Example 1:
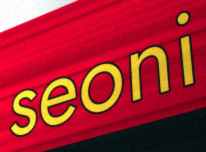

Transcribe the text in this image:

seoni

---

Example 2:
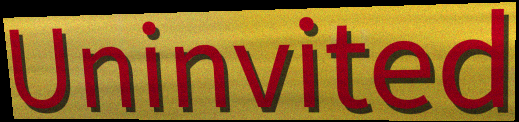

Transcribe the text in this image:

Uninvited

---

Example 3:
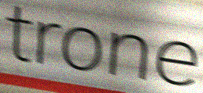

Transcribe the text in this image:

trone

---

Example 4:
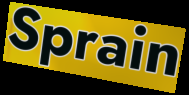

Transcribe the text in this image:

Sprain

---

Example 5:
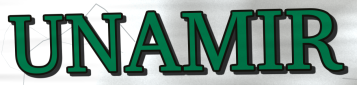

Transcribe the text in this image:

UNAMIR